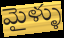
మైళ్ళు